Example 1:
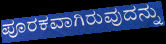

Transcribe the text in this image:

ಪೂರಕವಾಗಿರುವುದನ್ನು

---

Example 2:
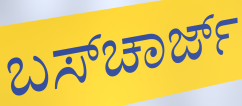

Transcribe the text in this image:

ಬಸ್‌ಚಾರ್ಜ್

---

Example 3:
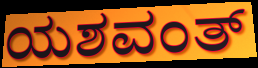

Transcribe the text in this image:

ಯಶವಂತ್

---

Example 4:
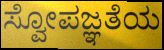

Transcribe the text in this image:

ಸ್ವೋಪಜ್ಞತೆಯ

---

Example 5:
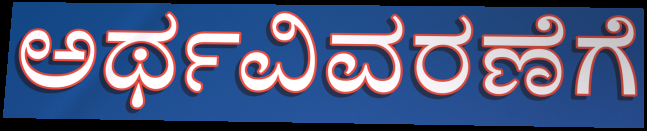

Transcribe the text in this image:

ಅರ್ಥವಿವರಣೆಗೆ